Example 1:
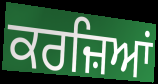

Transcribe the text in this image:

ਕਰਜ਼ਿਆਂ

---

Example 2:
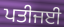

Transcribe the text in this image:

ਪਤੀਜਈ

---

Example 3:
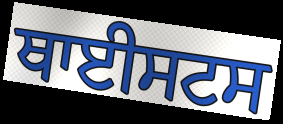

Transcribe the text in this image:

ਥਾਈਸਟਸ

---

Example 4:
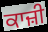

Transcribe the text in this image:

ਕਾਜ਼ੀ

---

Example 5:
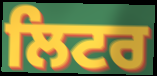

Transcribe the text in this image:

ਲਿਟਰ